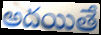
అదయితే